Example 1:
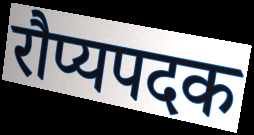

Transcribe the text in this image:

रौप्यपदक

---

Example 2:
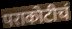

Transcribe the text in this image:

पराकोटीचं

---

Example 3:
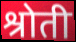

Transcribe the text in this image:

श्रोती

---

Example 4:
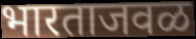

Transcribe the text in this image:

भारताजवळ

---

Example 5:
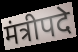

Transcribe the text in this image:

मंत्रीपदे